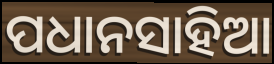
ପଧାନସାହିଆ